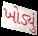
ખોડ્યું